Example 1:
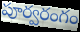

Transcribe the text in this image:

పూర్వరంగం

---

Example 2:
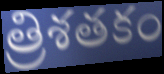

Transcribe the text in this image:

త్రిశతకం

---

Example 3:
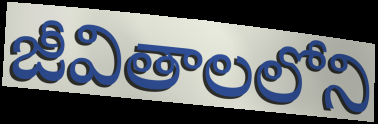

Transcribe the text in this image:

జీవితాలలోని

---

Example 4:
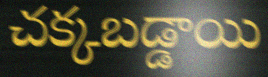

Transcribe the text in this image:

చక్కబడ్డాయి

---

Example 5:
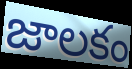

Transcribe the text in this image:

జాలకం